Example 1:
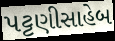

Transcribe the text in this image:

પટ્ટણીસાહેબ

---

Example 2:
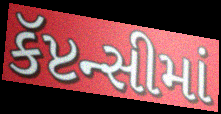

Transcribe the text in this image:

કૅપ્ટન્સીમાં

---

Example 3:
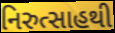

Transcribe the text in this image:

નિરુત્સાહથી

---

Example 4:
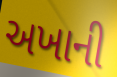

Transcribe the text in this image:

અખાની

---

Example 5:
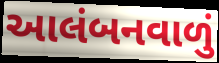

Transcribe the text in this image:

આલંબનવાળું